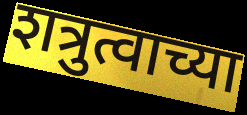
शत्रुत्वाच्या